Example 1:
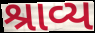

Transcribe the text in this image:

શ્રાવ્ય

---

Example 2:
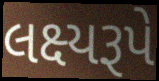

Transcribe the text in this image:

લક્ષ્યરૂપે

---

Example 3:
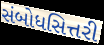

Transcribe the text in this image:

સંબોધસિત્તરી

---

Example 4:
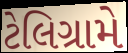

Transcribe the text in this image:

ટેલિગ્રામે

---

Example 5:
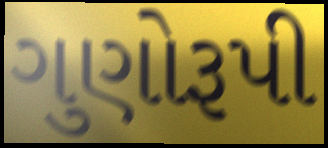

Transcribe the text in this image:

ગુણોરૂપી